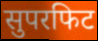
सुपरफिट